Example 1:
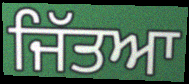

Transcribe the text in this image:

ਜਿੱਤਆ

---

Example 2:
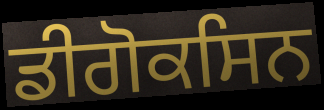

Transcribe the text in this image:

ਡੀਗੋਕਸਿਨ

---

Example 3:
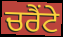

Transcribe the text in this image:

ਚਰੈਂਟੇ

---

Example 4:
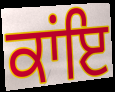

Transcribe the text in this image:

ਕਾਂਇ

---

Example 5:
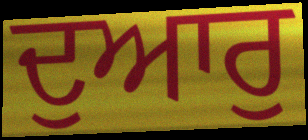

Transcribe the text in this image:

ਦੁਆਰੁ